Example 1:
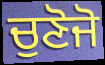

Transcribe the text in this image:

ਚੁਣੋਜੋ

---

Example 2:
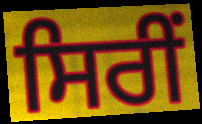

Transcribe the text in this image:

ਸਿਰੀਂ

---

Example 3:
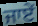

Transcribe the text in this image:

ਜਾਏਂ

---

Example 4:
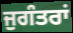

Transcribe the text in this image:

ਜੁਗੰਤਰਾਂ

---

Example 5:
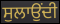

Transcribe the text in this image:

ਸੁਲਾਉਂਦੀ